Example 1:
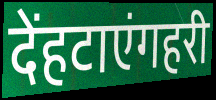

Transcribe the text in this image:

देंहटाएंगहरी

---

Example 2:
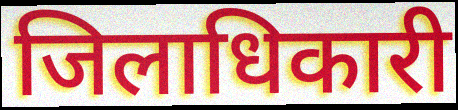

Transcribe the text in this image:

जिलाधिकारी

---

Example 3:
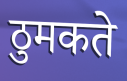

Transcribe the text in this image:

ठुमकते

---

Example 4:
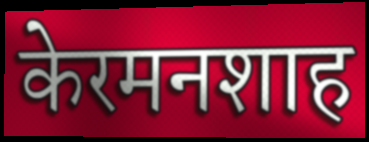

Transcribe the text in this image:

केरमनशाह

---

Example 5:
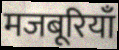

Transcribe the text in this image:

मजबूरियाँ